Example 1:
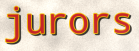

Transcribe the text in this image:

jurors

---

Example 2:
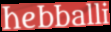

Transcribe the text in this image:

hebballi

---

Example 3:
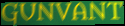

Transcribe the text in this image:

GUNVANT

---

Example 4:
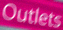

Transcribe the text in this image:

Outlets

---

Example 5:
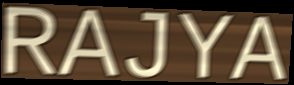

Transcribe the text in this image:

RAJYA